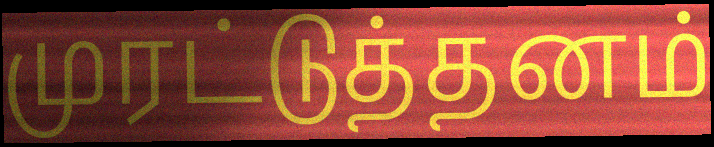
முரட்டுத்தனம்